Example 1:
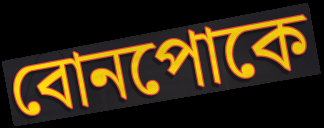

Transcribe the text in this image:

বোনপোকে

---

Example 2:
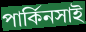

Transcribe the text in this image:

পার্কিনসাই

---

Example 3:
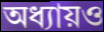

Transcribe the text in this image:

অধ্যায়ও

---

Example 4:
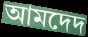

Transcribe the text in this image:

আমদেদ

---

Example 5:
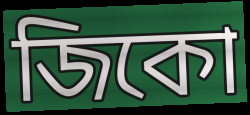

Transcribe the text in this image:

জিকো